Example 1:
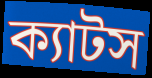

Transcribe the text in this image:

ক্যাটস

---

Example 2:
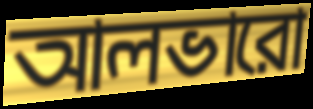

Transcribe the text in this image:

আলভারো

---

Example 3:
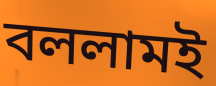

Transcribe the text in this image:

বললামই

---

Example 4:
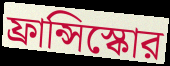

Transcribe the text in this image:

ফ্রান্সিস্কোর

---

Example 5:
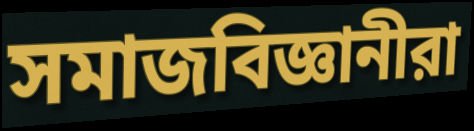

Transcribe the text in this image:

সমাজবিজ্ঞানীরা